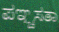
ಪಞ್ಚಸತಾ